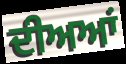
ਦੀਅਆਂ